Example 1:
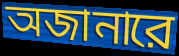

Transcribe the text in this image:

অজানারে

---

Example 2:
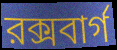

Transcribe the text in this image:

রক্সবার্গ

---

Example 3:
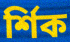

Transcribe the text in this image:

র্শিক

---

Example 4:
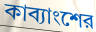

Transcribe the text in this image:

কাব্যাংশের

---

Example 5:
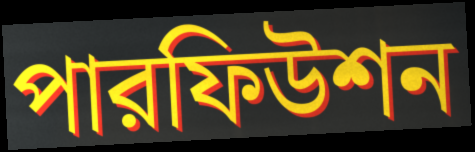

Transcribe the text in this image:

পারফিউশন